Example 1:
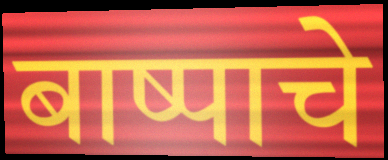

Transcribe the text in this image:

बाष्पाचे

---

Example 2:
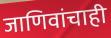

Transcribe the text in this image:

जाणिवांचाही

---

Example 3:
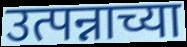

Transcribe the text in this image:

उत्पन्नाच्या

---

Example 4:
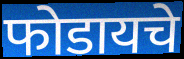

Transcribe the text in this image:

फोडायचे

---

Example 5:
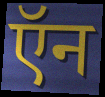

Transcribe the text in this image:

ऍन